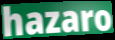
hazaro